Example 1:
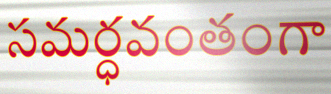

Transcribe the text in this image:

సమర్ధవంతంగా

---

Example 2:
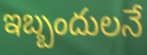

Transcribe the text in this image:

ఇబ్బందులనే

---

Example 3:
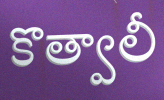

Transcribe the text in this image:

కొత్వాలీ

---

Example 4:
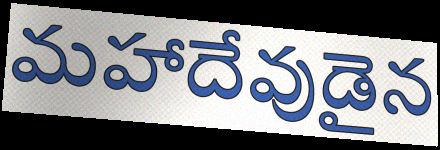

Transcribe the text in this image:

మహాదేవుడైన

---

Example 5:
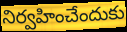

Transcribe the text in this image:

నిర్వహించేందుకు